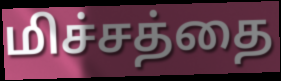
மிச்சத்தை